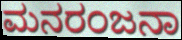
ಮನರಂಜನಾ